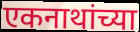
एकनाथांच्या